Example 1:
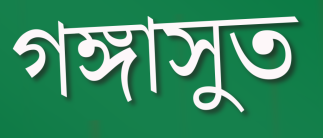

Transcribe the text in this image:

গঙ্গাসুত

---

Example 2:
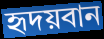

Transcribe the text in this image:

হৃদয়বান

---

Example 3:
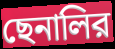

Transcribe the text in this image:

ছেনালির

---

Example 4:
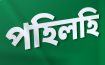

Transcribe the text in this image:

পহিলহি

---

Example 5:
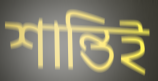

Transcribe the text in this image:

শান্তিই